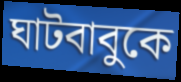
ঘাটবাবুকে